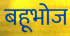
बहूभोज